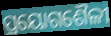
ପ୍ରୟୋଗଶୈଳୀ